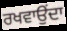
ਰਖਵਾਉਂਦਾ